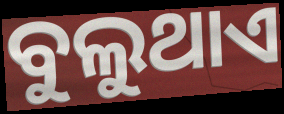
ବୁଲୁଥାଏ